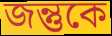
জন্তুকে